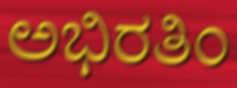
ಅಭಿರತಿಂ